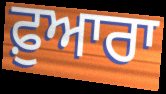
ਫ਼ੁਆਰਾ